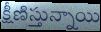
క్షీణిస్తున్నాయి